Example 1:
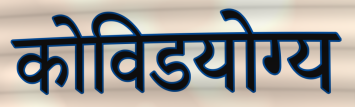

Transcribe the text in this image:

कोविडयोग्य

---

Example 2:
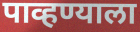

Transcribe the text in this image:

पाव्हण्याला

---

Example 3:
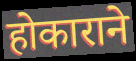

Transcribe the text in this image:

होकाराने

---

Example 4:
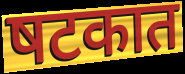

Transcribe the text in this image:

षटकात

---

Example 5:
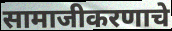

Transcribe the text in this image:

सामाजीकरणाचे